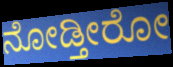
ನೋಡ್ತೀರೋ